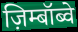
ज़िम्बॉब्वे